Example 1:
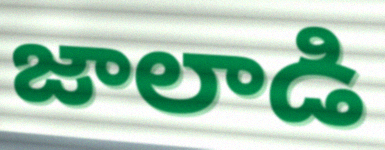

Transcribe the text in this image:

జాలాడి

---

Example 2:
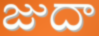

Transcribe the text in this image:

జుదా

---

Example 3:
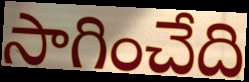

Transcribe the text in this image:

సాగించేది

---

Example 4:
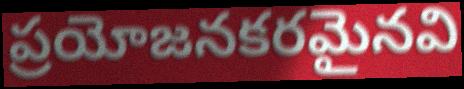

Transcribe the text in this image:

ప్రయోజనకరమైనవి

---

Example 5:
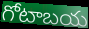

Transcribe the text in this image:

గోటాబయ